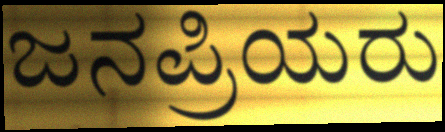
ಜನಪ್ರಿಯರು